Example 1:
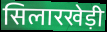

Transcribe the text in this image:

सिलारखेड़ी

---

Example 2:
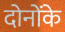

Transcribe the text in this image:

दोनोंके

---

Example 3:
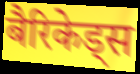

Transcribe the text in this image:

बैरिकेड्स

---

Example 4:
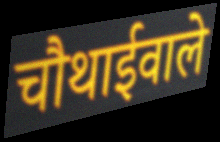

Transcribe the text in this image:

चौथाईवाले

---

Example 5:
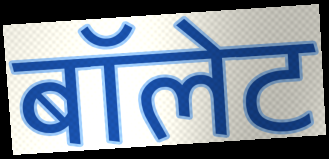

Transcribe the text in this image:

बॉलेट